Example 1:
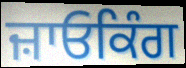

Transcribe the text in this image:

ਜ਼ਾਓਕਿੰਗ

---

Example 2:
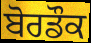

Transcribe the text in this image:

ਬੋਰਡੌਕ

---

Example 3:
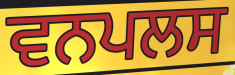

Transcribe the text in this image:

ਵਨਪਲਸ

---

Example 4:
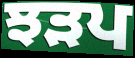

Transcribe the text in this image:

ਝੜਪ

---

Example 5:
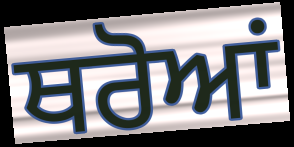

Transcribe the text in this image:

ਥਰੋਆਂ